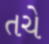
તચે